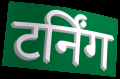
टर्निंग